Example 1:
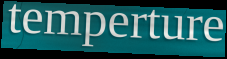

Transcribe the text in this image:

temperture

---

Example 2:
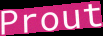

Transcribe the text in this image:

Prout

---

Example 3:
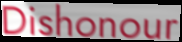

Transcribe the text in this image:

Dishonour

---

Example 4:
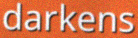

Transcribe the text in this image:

darkens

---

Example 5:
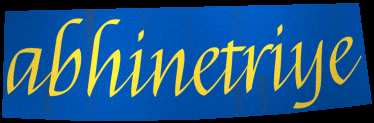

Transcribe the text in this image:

abhinetriye